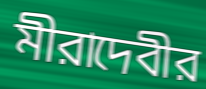
মীরাদেবীর